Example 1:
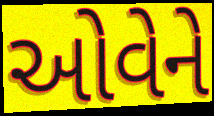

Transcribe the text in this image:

ઓવેને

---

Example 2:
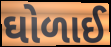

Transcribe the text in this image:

ઘોળાઈ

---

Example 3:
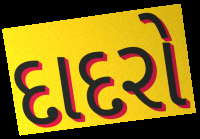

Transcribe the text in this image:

દાદરો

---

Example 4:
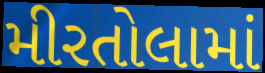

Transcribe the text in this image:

મીરતોલામાં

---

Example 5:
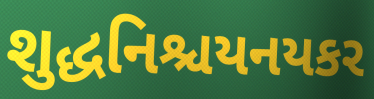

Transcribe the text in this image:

શુદ્ધનિશ્ચયનયકર